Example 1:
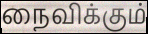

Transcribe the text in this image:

நைவிக்கும்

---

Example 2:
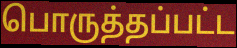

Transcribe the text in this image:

பொருத்தப்பட்ட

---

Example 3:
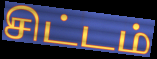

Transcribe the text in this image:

சிட்டம்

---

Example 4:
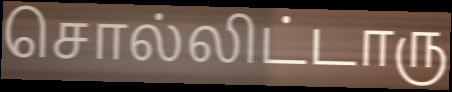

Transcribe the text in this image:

சொல்லிட்டாரு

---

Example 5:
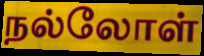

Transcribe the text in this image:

நல்லோள்